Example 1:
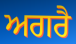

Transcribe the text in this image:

ਅਗਰੈ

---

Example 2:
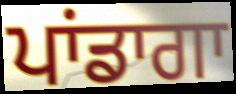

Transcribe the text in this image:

ਪਾਂਡਾਗਾ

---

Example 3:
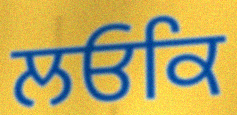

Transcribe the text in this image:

ਲਓਕਿ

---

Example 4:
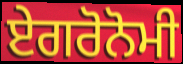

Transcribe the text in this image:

ਏਗਰੋਨੋਮੀ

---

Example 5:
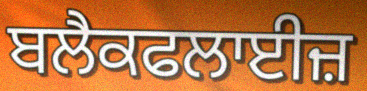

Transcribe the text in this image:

ਬਲੈਕਫਲਾਈਜ਼